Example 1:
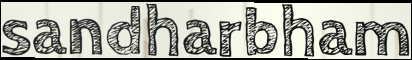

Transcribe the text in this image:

sandharbham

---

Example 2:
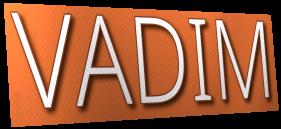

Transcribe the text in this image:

VADIM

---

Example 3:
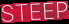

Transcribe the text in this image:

STEEP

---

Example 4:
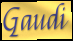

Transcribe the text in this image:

Gaudi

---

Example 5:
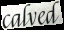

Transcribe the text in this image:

calved